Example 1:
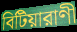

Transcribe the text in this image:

বিটিয়ারাণী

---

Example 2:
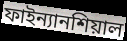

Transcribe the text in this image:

ফাইন্যানশিয়াল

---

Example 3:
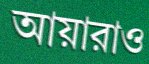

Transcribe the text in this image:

আয়ারাও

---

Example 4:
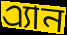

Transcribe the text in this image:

এ্যান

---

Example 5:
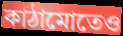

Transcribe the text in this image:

কাঠামোতেও